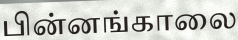
பின்னங்காலை